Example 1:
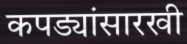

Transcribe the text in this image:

कपड्यांसारखी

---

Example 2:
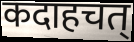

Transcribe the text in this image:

कदाहचत्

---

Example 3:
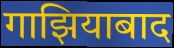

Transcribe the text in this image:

गाझियाबाद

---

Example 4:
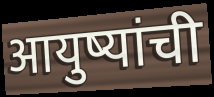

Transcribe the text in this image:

आयुष्यांची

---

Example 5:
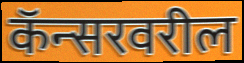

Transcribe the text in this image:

कॅन्सरवरील